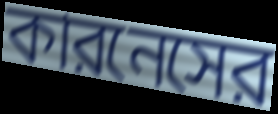
কারনেসের